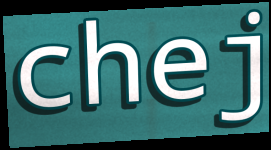
chej